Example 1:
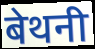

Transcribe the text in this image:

बेथनी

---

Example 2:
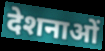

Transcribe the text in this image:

देशनाओं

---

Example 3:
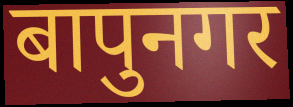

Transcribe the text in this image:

बापुनगर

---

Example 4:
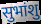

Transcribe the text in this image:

सुभांशु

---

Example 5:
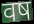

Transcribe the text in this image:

वष